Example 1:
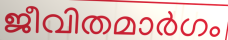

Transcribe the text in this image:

ജീവിതമാർഗം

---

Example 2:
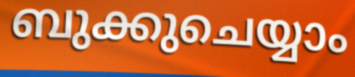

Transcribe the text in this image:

ബുക്കുചെയ്യാം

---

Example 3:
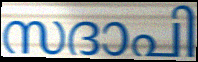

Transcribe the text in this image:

സദാപി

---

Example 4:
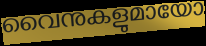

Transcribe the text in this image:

വൈനുകളുമായോ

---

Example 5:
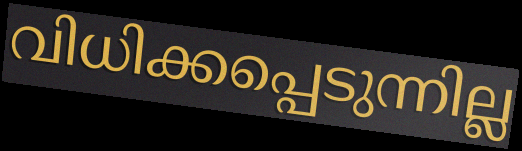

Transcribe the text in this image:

വിധിക്കപ്പെടുന്നില്ല